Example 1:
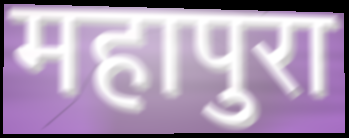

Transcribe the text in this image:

महापुरा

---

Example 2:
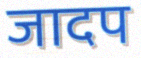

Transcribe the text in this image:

जादप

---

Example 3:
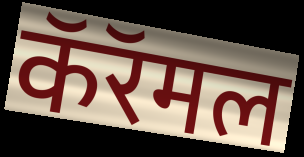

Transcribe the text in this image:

कॅरॅमल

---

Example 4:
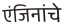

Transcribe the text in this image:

एंजिनांचे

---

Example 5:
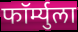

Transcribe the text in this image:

फॉर्म्युला